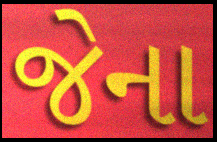
જેના